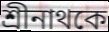
শ্রীনাথকে